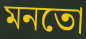
মনতো